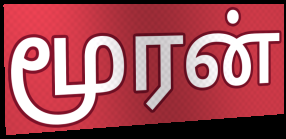
மூரன்